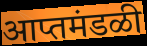
आप्तमंडळी